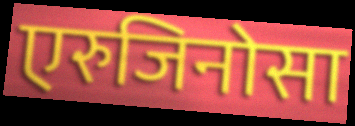
एरुजिनोसा